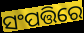
ସଂପତ୍ତିରେ